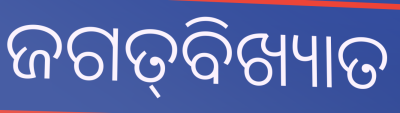
ଜଗତ୍‌ବିଖ୍ୟାତ